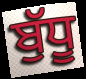
ਬੁੱਧੂ